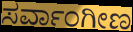
ಸರ್ವಾಂಗೀಣ